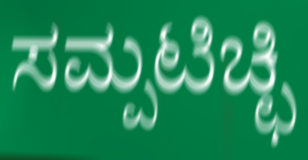
ಸಮ್ಪಟಿಚ್ಛಿ